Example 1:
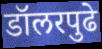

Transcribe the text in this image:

डॉलरपुढे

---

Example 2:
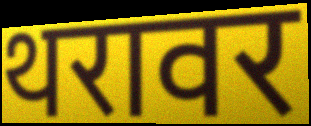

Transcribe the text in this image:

थरावर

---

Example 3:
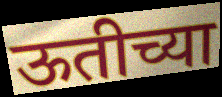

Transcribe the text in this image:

ऊतीच्या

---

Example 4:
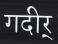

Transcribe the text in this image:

गदीर्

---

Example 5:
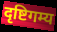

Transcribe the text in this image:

दृष्टिगम्य